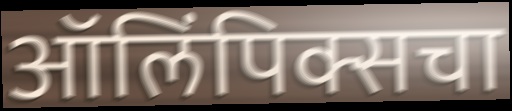
ऑलिंपिक्सचा